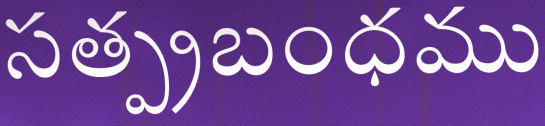
సత్ప్రబంధము